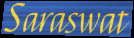
Saraswat